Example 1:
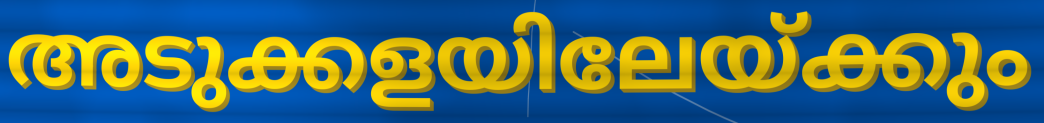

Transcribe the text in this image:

അടുക്കളയിലേയ്ക്കും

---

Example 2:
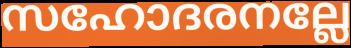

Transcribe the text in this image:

സഹോദരനല്ലേ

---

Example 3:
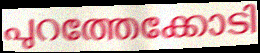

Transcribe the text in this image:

പുറത്തേക്കോടി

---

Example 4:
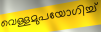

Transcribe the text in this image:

വെള്ളമുപയോഗിച്ച്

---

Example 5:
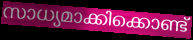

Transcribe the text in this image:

സാധ്യമാക്കിക്കൊണ്ട്